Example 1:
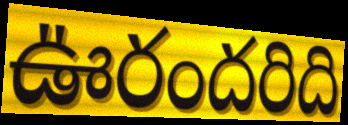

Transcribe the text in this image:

ఊరందరిది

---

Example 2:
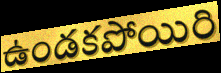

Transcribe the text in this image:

ఉండకపోయిరి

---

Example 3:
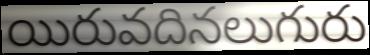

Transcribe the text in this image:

యిరువదినలుగురు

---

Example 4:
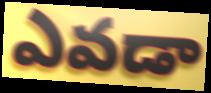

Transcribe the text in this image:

ఎవడా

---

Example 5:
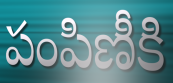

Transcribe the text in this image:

పంపిణీకి